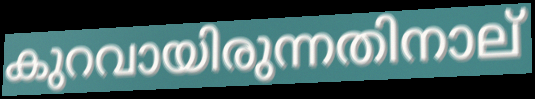
കുറവായിരുന്നതിനാല്